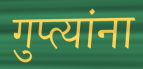
गुप्त्यांना